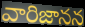
వారిజానన